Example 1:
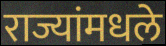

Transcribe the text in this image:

राज्यांमधले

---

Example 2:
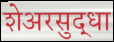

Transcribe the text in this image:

शेअरसुद्धा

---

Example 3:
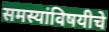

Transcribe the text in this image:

समस्यांविषयीचे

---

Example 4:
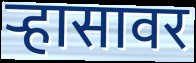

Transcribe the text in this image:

ऱ्हासावर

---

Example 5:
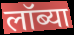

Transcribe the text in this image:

लॉब्या